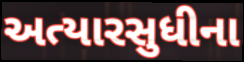
અત્યારસુધીના